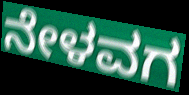
ನೇಳವಗ